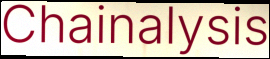
Chainalysis